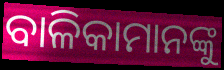
ବାଳିକାମାନଙ୍କୁ